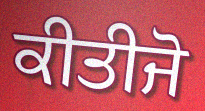
ਕੀਤੀਜੋ